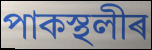
পাকস্থলীৰ